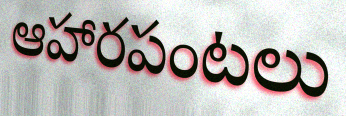
ఆహారపంటలు